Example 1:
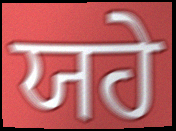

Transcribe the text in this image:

ਯਹੇ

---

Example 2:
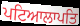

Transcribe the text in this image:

ਪਟਿਆਲਾਪਤਿ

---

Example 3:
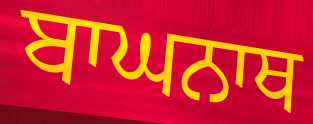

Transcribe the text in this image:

ਬਾਘਨਾਥ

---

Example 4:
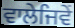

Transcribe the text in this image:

ਵਾਲੇਜਿਵੇਂ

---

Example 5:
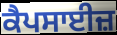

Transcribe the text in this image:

ਕੈਪਸਾਈਜ਼